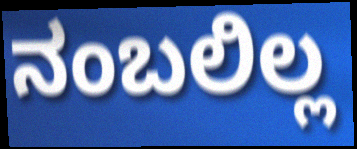
ನಂಬಲಿಲ್ಲ